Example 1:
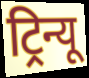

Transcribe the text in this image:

ट्रिन्यू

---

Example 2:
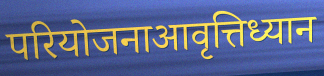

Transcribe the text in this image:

परियोजनाआवृत्तिध्यान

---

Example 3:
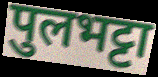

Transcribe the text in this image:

पुलभट्टा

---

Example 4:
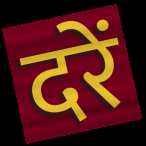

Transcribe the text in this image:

दरें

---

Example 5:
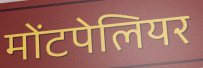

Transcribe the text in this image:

मोंटपेलियर